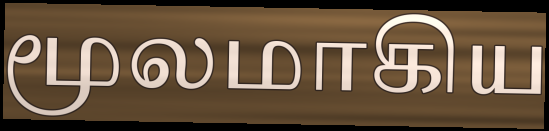
மூலமாகிய